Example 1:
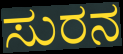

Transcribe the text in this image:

ಸುರನ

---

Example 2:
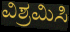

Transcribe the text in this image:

ವಿಶ್ರಮಿಸಿ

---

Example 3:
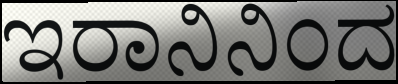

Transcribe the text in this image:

ಇರಾನಿನಿಂದ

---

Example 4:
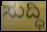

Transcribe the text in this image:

ಸುದ್ಧಿ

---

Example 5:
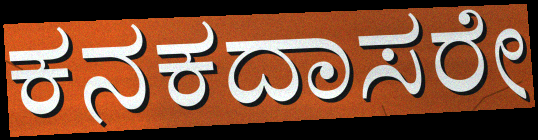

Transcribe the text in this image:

ಕನಕದಾಸರೇ